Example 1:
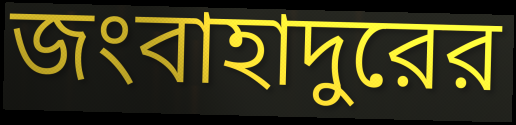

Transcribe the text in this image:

জংবাহাদুরের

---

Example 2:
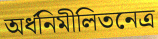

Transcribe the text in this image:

অর্ধনিমীলিতনেত্র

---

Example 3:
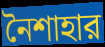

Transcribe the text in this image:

নৈশাহার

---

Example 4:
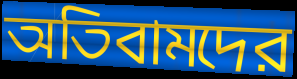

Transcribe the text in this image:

অতিবামদের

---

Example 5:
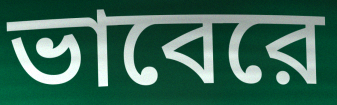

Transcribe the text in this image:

ভাবেরে